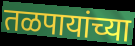
तळपायांच्या